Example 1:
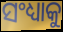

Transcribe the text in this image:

ସଂଧ୍ୟାକୁ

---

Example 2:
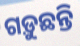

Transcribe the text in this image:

ଗଡ଼ୁଛନ୍ତି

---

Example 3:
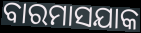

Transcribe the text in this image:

ବାରମାସଯାକ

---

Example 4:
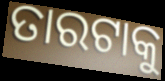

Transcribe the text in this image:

ତାରଟାକୁ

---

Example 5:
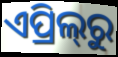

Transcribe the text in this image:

ଏପ୍ରିଲ୍‍ରୁ